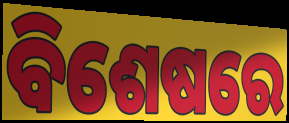
ବିଶେଷରେ